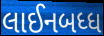
લાઈનબધ્ધ